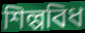
শিল্পবিধ